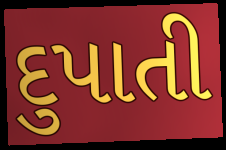
દુપાતી